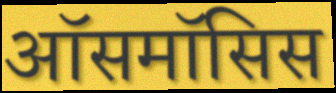
ऑसमॉसिस